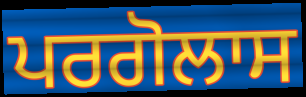
ਪਰਗੋਲਾਸ